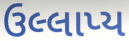
ઉલ્લાપ્ય